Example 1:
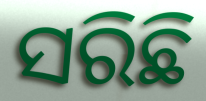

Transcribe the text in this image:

ସରିଛି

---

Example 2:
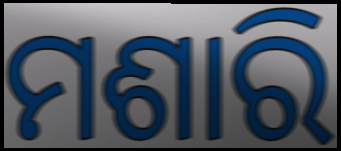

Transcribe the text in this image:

ମଶାରି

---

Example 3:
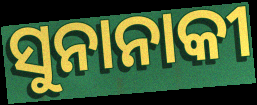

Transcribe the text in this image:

ସୁନାନାକୀ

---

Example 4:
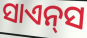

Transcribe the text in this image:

ସାଏନ୍‌ସ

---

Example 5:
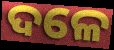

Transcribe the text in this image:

ଦଳେ